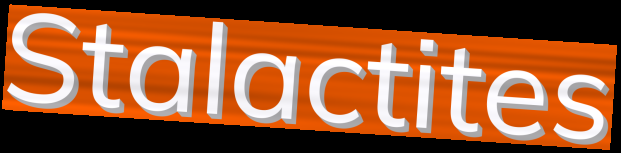
Stalactites